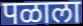
पळाला